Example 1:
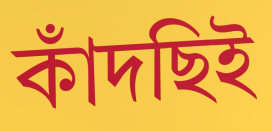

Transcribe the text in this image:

কাঁদছিই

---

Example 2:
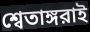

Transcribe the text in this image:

শ্বেতাঙ্গরাই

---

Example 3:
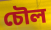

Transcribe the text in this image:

চৌল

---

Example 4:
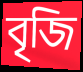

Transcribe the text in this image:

বৃজি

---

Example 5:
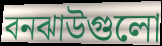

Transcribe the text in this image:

বনঝাউগুলো